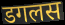
डगलस